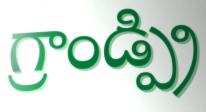
గ్రాండ్ప్రి